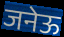
जनेऊ